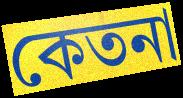
কেতনা